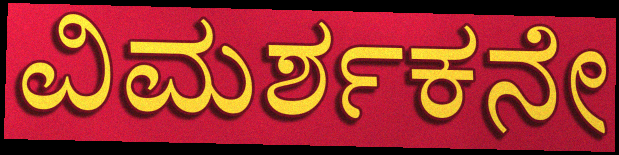
ವಿಮರ್ಶಕನೇ